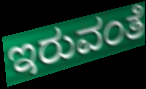
ಇರುವಂತೆ